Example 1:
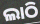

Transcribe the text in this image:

ଲାଠି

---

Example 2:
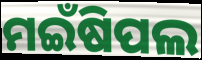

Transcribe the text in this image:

ମଇଁଷିପଲ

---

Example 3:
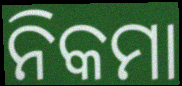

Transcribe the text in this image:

ନିକମା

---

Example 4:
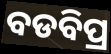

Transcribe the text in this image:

ବଡବିପ୍ର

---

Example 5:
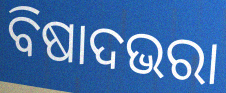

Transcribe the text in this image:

ବିଷାଦଭରା